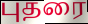
புதரை